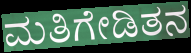
ಮತಿಗೇಡಿತನ